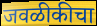
जवळीकीचा